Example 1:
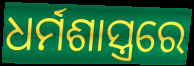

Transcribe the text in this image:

ଧର୍ମଶାସ୍ତ୍ରରେ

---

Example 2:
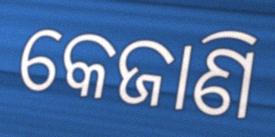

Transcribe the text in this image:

କେଜାଣି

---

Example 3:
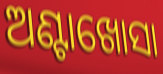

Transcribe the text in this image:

ଅଣ୍ଟାଖୋସା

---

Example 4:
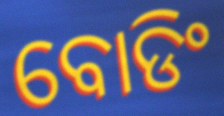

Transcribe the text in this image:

ବୋଡିଂ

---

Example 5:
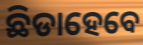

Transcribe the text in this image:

ଛିଡାହେବେ